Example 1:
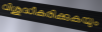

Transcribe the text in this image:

വിശുദ്ധീകരിക്കുകയും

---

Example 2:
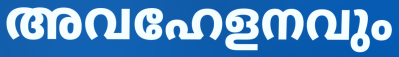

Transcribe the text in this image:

അവഹേളനവും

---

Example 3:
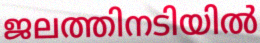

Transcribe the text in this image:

ജലത്തിനടിയിൽ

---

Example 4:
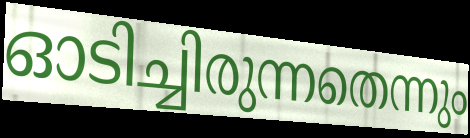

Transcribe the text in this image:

ഓടിച്ചിരുന്നതെന്നും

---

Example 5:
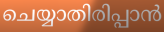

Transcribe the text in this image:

ചെയ്യാതിരിപ്പാൻ